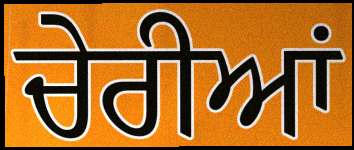
ਚੇਰੀਆਂ